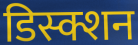
डिस्क्शन